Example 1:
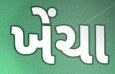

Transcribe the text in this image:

ખેંચા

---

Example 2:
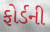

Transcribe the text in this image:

ફોર્ડની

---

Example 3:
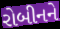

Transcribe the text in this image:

રોબીનને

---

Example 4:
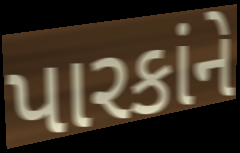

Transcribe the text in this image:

પારકાંને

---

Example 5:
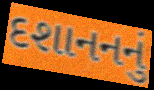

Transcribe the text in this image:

દશાનનનું